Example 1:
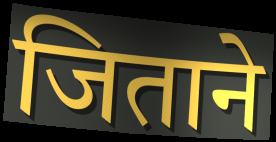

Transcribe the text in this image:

जिताने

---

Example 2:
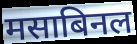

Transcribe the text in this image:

मसाबिनल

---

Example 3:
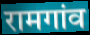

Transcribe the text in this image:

रामगांव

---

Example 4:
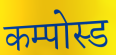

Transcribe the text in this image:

कम्पोस्ड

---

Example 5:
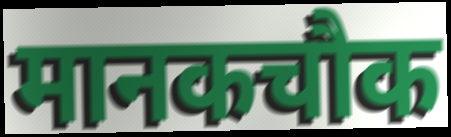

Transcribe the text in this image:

मानकचौक